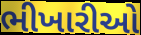
ભીખારીઓ